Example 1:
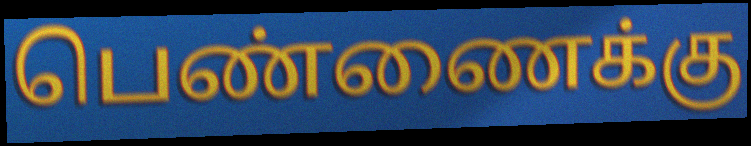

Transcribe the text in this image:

பெண்ணைக்கு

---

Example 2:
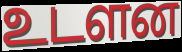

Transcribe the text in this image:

உடளன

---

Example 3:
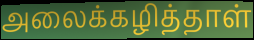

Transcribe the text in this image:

அலைக்கழித்தாள்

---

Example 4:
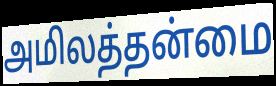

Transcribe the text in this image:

அமிலத்தன்மை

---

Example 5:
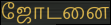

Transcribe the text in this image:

ஜோடனை